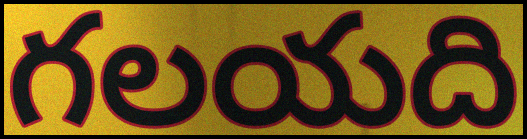
గలయది